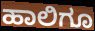
ಹಾಲಿಗೂ